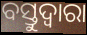
ବସ୍ତୁଦ୍ଵାରା